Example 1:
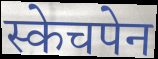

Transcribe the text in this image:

स्केचपेन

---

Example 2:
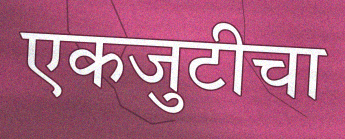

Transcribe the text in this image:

एकजुटीचा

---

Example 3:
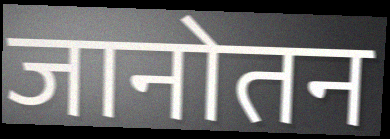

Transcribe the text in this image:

जानोतन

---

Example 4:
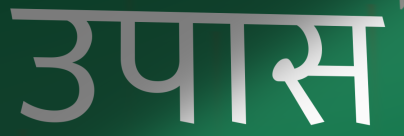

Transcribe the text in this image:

उपास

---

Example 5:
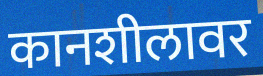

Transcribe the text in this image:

कानशीलावर